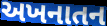
અખનાતન